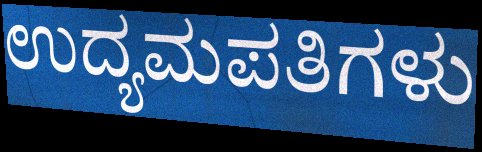
ಉದ್ಯಮಪತಿಗಳು